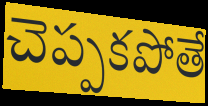
చెప్పకపోతే